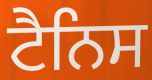
ਟੈਨਿਸ